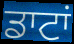
ਡਾਟਾਂ